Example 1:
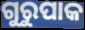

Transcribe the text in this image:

ଗୁରୁପାକ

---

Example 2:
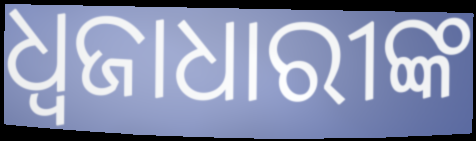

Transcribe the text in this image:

ଧ୍ୱଜାଧାରୀଙ୍କ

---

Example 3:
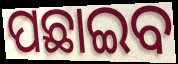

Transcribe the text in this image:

ପଛାଇବ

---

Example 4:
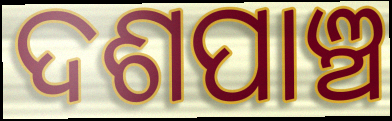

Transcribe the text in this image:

ଦଶପାଞ୍ଚ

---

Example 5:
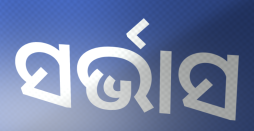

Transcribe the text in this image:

ସର୍ଭାସ